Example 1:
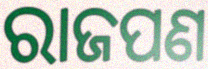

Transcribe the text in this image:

ରାଜପଣ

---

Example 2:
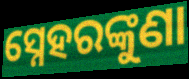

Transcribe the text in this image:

ସ୍ନେହରଙ୍କୁଣା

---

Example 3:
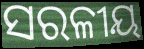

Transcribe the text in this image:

ସରଳୀୟ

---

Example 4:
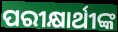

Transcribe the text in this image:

ପରୀକ୍ଷାର୍ଥୀଙ୍କ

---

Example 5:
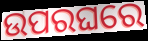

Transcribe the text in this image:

ଉପରଘରେ